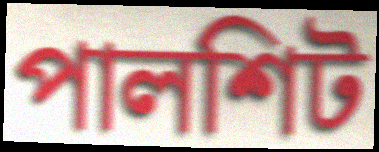
পালশিট